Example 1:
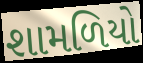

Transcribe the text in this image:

શામળિયો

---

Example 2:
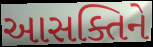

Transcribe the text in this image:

આસક્તિને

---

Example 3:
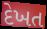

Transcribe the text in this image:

દેખત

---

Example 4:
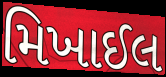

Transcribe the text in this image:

મિખાઈલ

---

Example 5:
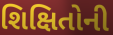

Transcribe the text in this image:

શિક્ષિતોની